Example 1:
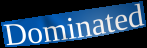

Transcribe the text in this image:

Dominated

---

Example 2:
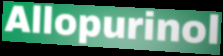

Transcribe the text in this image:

Allopurinol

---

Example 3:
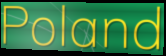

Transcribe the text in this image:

Poland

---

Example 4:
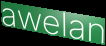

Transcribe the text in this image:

awelan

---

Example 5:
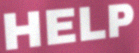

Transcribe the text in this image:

HELP